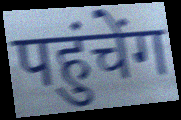
पहुंचेंग